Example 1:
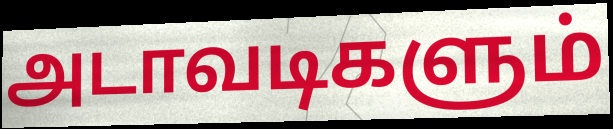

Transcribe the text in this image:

அடாவடிகளும்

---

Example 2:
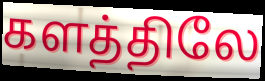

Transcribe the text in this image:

களத்திலே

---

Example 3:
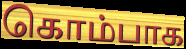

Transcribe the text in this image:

கொம்பாக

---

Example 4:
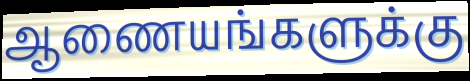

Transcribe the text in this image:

ஆணையங்களுக்கு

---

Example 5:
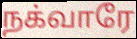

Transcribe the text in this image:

நக்வாரே